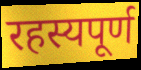
रहस्यपूर्ण